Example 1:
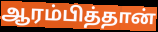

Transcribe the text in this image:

ஆரம்பித்தான்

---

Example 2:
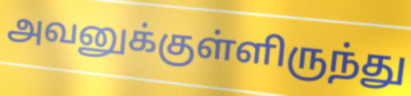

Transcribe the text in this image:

அவனுக்குள்ளிருந்து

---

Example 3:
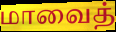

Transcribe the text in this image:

மாவைத்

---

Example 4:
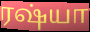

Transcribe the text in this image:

ரஷ்யா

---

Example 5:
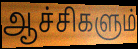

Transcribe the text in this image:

ஆச்சிகளும்